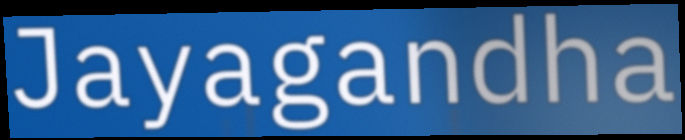
Jayagandha